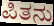
ಪಿತನು